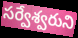
సర్వేశ్వరుని